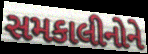
સમકાલીનોને